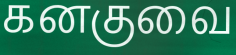
கனகுவை